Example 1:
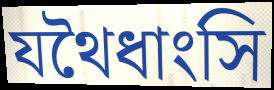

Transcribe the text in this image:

যথৈধাংসি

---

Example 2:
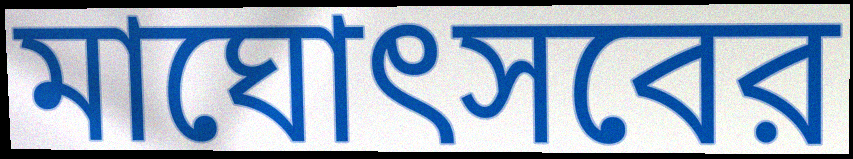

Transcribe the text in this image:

মাঘোৎসবের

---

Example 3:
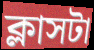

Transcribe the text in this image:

ক্লাসটা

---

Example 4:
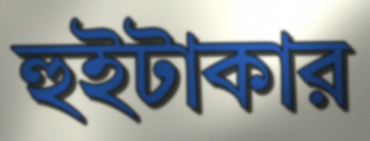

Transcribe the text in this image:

হুইটাকার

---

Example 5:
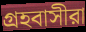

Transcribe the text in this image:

গ্রহবাসীরা